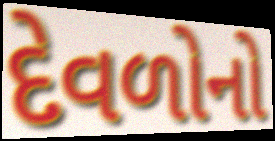
દેવળોનો